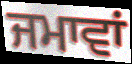
ਜਮਾਵਾਂ